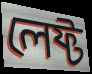
লেফ্ট